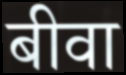
बीवा